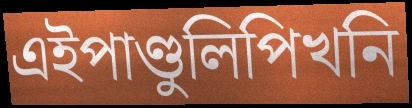
এইপাণ্ডুলিপিখনি